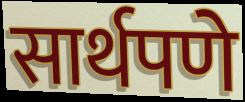
सार्थपणे